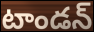
టాండన్